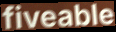
fiveable